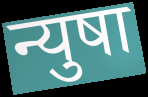
न्युषा